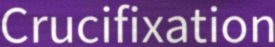
Crucifixation